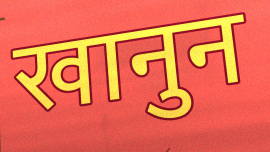
खानुन